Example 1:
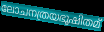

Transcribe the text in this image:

ലോചനത്രയഭൂഷിതമ്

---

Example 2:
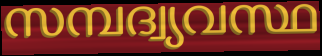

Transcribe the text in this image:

സമ്പദ്വ്യവസ്ഥ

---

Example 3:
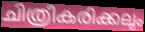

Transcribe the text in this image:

ചിത്രീകരിക്കലും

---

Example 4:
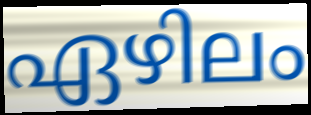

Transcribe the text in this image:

ഏഴിലം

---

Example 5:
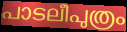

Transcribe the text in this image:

പാടലീപുത്രം